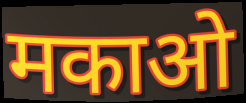
मकाओ